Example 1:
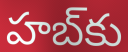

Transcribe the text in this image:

హబ్‌కు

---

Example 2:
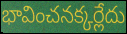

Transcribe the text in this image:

భావించనక్కర్లేదు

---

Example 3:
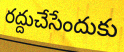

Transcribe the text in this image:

రద్దుచేసేందుకు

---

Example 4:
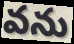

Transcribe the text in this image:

వను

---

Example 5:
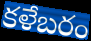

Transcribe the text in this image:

కళేబరం